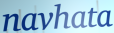
navhata